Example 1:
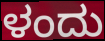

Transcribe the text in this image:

ಳಂದು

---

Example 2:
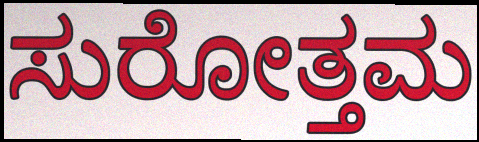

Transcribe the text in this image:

ಸುರೋತ್ತಮ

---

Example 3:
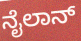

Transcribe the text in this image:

ನೈಲಾನ್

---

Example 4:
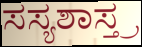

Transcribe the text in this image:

ಸಸ್ಯಶಾಸ್ತ್ರ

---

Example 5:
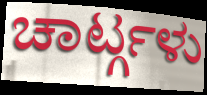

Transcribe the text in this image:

ಚಾರ್ಟ್ಗಳು